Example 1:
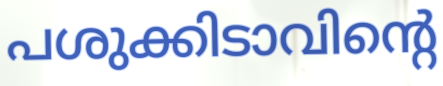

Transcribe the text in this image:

പശുക്കിടാവിന്റെ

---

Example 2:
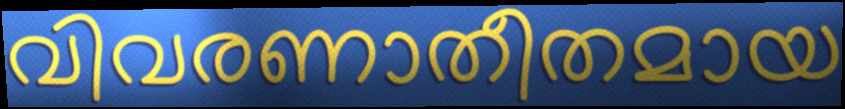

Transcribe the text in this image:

വിവരണാതീതമായ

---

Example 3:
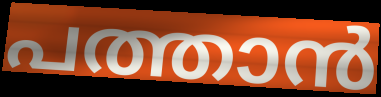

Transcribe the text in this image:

പത്താൻ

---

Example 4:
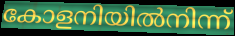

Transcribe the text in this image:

കോളനിയിൽനിന്ന്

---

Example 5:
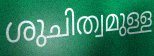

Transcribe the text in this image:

ശുചിത്വമുള്ള